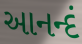
આનન્દં